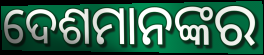
ଦେଶମାନଙ୍କର